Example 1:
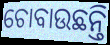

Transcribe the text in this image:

ଚୋବାଉଛନ୍ତି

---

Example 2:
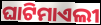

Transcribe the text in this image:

ଘାଟିମାଏଲୀ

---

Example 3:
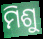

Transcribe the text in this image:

ମିଶୁ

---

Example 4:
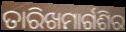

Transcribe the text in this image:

ତାରିଖମାର୍ଗଶିର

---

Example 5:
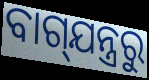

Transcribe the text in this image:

ବାଗ୍‌ଯନ୍ତ୍ରରୁ